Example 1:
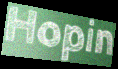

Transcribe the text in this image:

Hopin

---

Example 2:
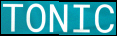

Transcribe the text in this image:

TONIC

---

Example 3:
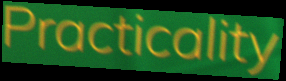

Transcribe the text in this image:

Practicality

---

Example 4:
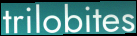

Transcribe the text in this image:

trilobites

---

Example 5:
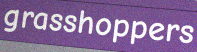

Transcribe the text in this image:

grasshoppers